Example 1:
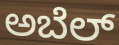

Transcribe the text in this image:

ಅಬೆಲ್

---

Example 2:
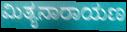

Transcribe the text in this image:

ಮಿತ್ಯನಾರಾಯಣ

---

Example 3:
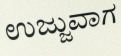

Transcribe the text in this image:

ಉಜ್ಜುವಾಗ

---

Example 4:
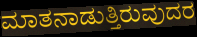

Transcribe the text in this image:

ಮಾತನಾಡುತ್ತಿರುವುದರ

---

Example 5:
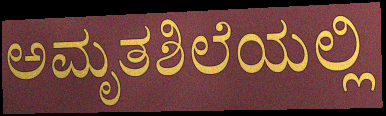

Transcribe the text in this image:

ಅಮೃತಶಿಲೆಯಲ್ಲಿ